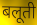
बलूती